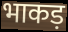
भाकड़